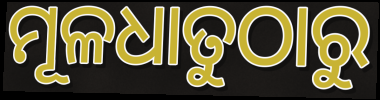
ମୂଳଧାତୁଠାରୁ